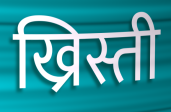
ख्रिस्ती